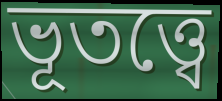
ভূতত্ত্বে